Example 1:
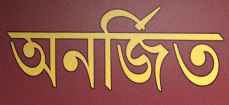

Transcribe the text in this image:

অনর্জিত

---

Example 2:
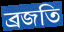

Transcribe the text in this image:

ব্রজতি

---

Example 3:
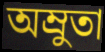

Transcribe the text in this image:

অম্রুতা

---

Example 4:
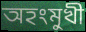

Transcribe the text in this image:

অহংমুখী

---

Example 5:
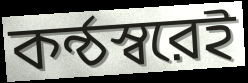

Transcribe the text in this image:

কন্ঠস্বরেই